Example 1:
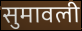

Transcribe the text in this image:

सुमावली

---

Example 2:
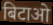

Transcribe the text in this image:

बिटाओ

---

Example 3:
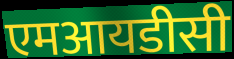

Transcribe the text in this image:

एमआयडीसी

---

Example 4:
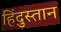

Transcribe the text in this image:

हिंदुस्‍तान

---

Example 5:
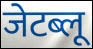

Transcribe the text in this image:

जेटब्लू